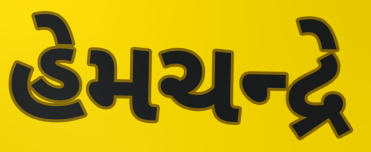
હેમચન્દ્રે